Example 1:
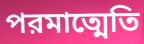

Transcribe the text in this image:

পরমাত্মেতি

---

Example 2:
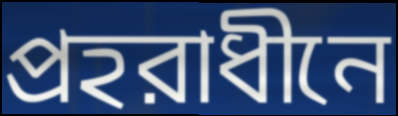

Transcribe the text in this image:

প্রহরাধীনে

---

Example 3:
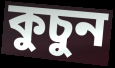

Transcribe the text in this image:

কুচুন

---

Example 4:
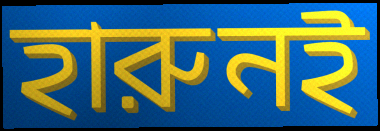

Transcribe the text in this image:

হারুনই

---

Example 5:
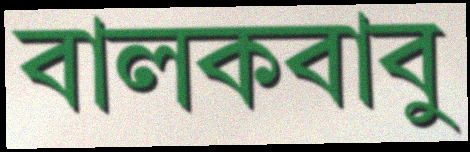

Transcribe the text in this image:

বালকবাবু